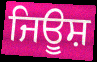
ਜਿਊਸ਼